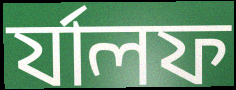
র্যালফ